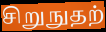
சிறுநுதற்